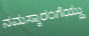
ನಮಸ್ಕಾರಂಗೆಯ್ದು